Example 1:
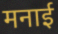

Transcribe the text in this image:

मनाई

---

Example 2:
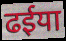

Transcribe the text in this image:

ढईया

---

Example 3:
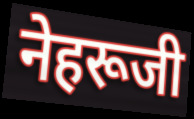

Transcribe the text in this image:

नेहरूजी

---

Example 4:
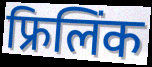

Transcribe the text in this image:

फ्रिलिंक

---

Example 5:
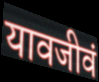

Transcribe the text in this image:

यावजीवं